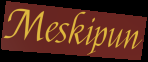
Meskipun